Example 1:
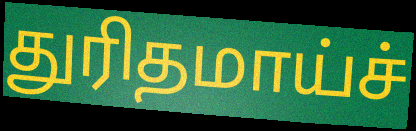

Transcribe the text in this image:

துரிதமாய்ச்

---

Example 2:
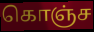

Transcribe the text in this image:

கொஞ்ச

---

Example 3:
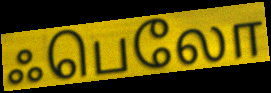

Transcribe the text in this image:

ஃபெலோ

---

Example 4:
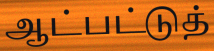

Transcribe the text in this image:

ஆட்பட்டுத்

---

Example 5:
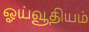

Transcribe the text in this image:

ஓய்வூதியம்